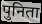
पुनिता